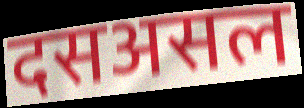
दसअसल